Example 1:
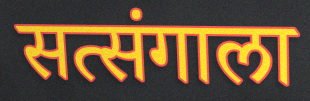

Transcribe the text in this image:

सत्संगाला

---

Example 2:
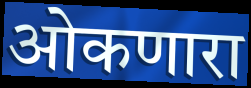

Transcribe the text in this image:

ओकणारा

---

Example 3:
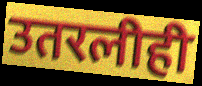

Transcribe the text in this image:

उतरलीही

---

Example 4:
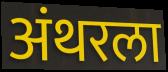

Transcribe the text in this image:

अंथरला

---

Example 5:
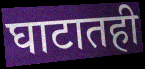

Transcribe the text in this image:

घाटातही